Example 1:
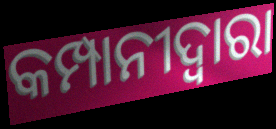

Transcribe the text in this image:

କମ୍ପାନୀଦ୍ୱାରା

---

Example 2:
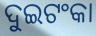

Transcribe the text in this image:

ଦୁଇଟଂକା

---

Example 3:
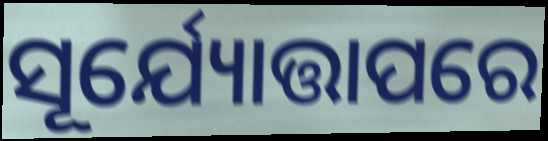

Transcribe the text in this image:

ସୂର୍ଯ୍ୟୋତ୍ତାପରେ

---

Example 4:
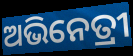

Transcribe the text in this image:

ଅଭିନେତ୍ରୀ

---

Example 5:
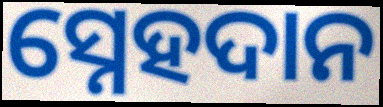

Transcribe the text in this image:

ସ୍ନେହଦାନ